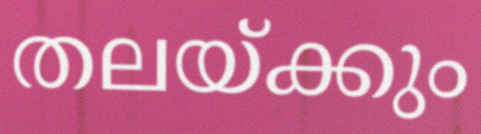
തലയ്ക്കും